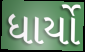
ધાર્યો